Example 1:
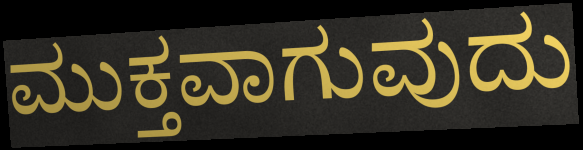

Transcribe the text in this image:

ಮುಕ್ತವಾಗುವುದು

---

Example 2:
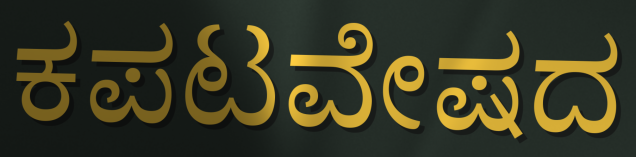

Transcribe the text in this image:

ಕಪಟವೇಷದ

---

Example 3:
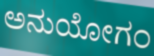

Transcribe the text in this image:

ಅನುಯೋಗಂ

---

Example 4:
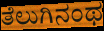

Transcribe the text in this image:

ತೆಲುಗಿನಂಥ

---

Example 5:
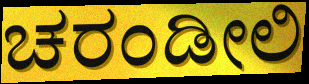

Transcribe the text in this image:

ಚರಂಡೀಲಿ